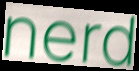
nerd